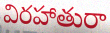
విరహాతురా